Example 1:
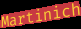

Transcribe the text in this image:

Martinich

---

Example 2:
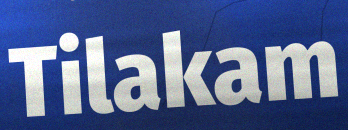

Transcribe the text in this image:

Tilakam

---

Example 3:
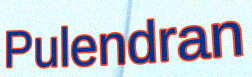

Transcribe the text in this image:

Pulendran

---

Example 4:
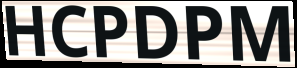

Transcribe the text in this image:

HCPDPM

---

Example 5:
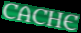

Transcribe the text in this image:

CACHE